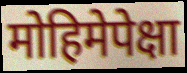
मोहिमेपेक्षा